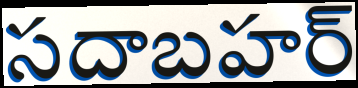
సదాబహర్